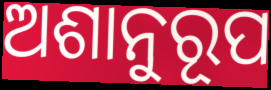
ଅଶାନୁରୂପ